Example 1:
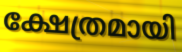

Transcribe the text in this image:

ക്ഷേത്രമായി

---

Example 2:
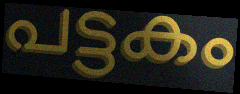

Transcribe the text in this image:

പട്ടകം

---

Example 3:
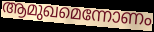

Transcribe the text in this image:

ആമുഖമെന്നോണം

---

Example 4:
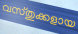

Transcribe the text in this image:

വസ്തുക്കളായ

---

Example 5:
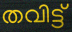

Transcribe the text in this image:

തവിട്ട്